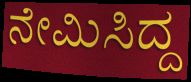
ನೇಮಿಸಿದ್ದ